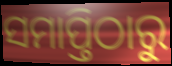
ସମାପ୍ତିଠାରୁ